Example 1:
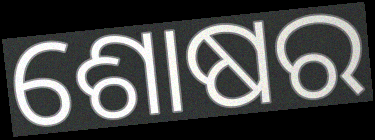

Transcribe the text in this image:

ଶୋଷର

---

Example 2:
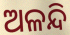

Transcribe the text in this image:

ଅଳନ୍ଦି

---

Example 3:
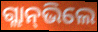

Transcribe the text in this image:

ଗ୍ଲାନ୍‌ଭିଲେ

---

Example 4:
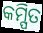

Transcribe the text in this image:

କମ୍ପିତ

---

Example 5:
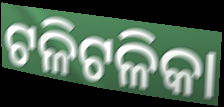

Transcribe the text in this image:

ଟଳିଟଳିକା